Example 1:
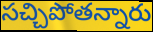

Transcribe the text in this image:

సచ్చిపోతన్నారు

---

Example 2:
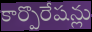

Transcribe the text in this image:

కార్పొరేషన్లు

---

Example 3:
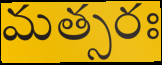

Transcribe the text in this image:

మత్సరః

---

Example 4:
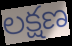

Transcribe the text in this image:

లక్షణ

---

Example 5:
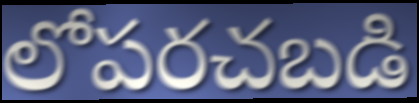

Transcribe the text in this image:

లోపరచబడి